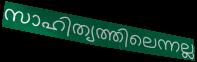
സാഹിത്യത്തിലെന്നല്ല